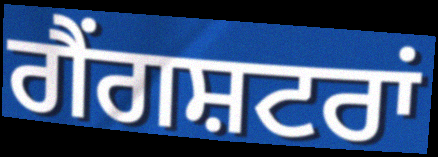
ਗੈਂਗਸ਼ਟਰਾਂ